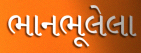
ભાનભૂલેલા